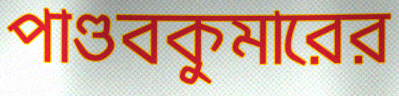
পাণ্ডবকুমারের